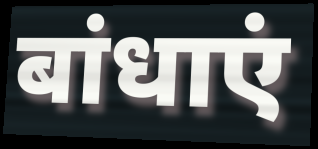
बांधाएं